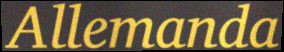
Allemanda